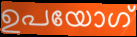
ഉപയോഗ്